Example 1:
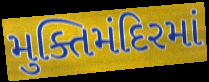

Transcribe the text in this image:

મુક્તિમંદિરમાં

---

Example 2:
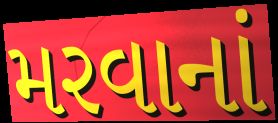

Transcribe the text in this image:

મરવાનાં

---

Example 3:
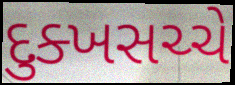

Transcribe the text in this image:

દુક્ખસચ્ચે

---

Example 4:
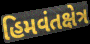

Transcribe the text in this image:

હિમવંતક્ષેત્ર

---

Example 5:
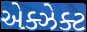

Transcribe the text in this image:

એક્ઝેક્ટ